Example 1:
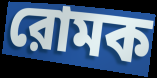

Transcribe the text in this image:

রোমক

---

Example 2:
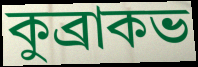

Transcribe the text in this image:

কুব্রাকভ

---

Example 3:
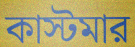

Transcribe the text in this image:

কাস্টমার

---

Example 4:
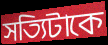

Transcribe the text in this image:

সত্যিটাকে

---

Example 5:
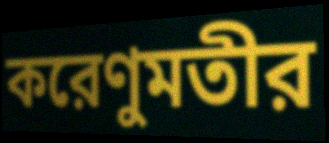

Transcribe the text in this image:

করেণুমতীর